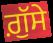
ਗ਼ੁੱਸੇ